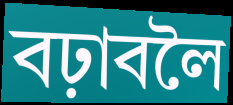
বঢ়াবলৈ